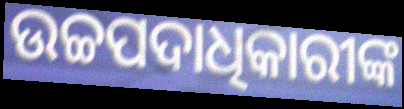
ଉଚ୍ଚପଦାଧିକାରୀଙ୍କ